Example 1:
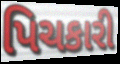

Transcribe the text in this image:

પિચકારી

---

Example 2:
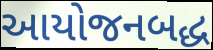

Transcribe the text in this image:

આયોજનબદ્ધ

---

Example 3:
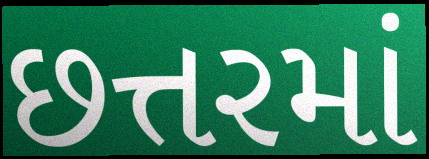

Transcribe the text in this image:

છત્તરમાં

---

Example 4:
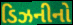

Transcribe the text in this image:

ડિઝનીનો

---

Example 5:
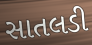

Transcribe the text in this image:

સાતલડી